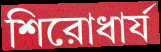
শিরোধার্য